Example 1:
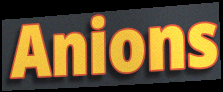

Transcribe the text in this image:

Anions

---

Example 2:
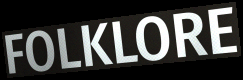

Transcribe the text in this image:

FOLKLORE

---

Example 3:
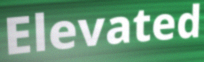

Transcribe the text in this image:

Elevated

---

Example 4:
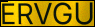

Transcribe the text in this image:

ERVGU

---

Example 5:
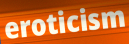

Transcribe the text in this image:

eroticism